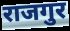
राजगुर